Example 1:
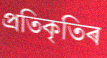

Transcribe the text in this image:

প্ৰতিকৃতিৰ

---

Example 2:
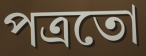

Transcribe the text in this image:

পত্ৰতো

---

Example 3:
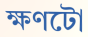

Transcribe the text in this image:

ক্ষণটো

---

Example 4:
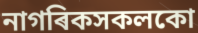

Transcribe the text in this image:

নাগৰিকসকলকো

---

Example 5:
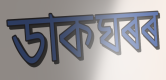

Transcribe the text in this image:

ডাকঘৰৰ